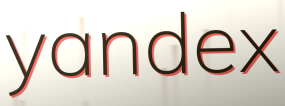
yandex